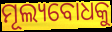
ମୂଲ୍ୟବୋଧକୁ